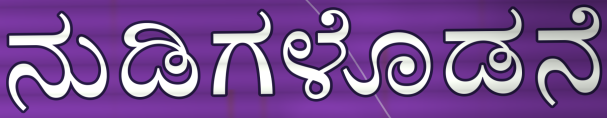
ನುಡಿಗಳೊಡನೆ